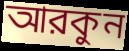
আরকুন